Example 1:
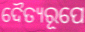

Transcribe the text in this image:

ଦୈତ୍ୟରୂପେ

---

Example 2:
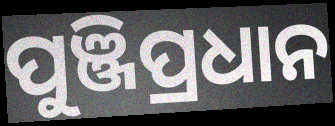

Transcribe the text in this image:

ପୁଞ୍ଜିପ୍ରଧାନ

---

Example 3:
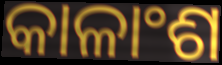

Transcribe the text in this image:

କାଳାଂଶ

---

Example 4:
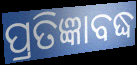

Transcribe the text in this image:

ପ୍ରତିଜ୍ଞାବଦ୍ଧ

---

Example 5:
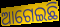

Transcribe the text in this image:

ଆଗେଇଛି